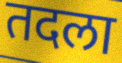
तदला